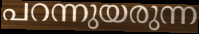
പറന്നുയരുന്ന